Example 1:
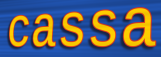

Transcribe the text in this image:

cassa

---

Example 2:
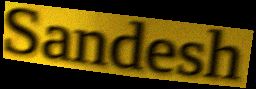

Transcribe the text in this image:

Sandesh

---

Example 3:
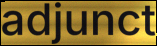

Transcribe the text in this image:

adjunct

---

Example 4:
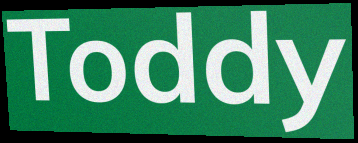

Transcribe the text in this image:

Toddy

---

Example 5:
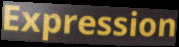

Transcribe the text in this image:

Expression